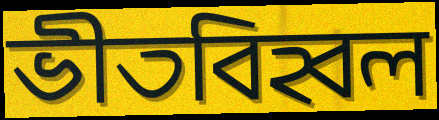
ভীতবিহ্বল